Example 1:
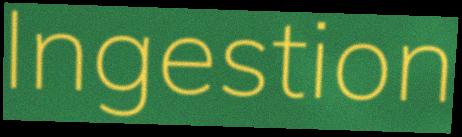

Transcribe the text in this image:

Ingestion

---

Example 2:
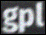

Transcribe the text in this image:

gpl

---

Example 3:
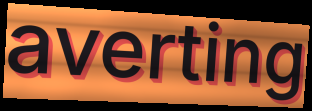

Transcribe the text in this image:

averting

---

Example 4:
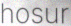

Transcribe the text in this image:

hosur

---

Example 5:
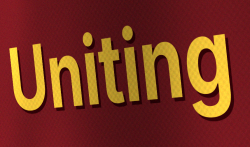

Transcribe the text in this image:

Uniting